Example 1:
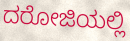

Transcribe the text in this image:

ದರೋಜಿಯಲ್ಲಿ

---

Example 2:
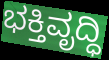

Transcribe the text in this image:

ಭಕ್ತಿವೃದ್ಧಿ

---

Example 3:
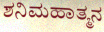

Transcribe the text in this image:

ಶನಿಮಹಾತ್ಮನ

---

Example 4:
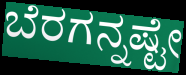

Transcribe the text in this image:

ಬೆರಗನ್ನಷ್ಟೇ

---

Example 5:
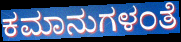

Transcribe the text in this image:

ಕಮಾನುಗಳಂತೆ